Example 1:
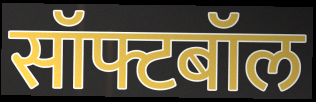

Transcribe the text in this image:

सॉफ्टबॉल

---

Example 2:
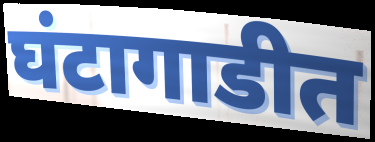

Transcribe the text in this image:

घंटागाडीत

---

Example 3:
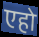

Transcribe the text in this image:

एहो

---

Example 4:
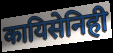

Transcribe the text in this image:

कायिसेनिही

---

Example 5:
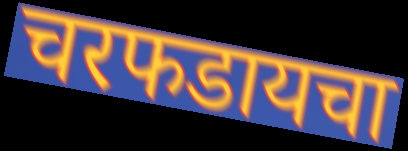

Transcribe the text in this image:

चरफडायचा